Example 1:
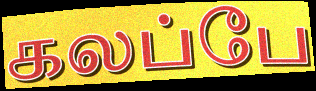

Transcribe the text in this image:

கலப்பே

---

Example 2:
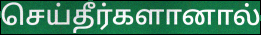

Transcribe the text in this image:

செய்தீர்களானால்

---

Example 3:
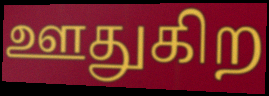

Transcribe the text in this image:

ஊதுகிற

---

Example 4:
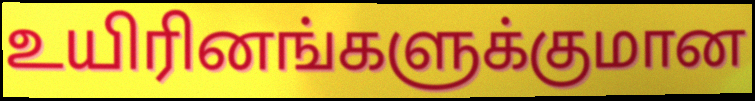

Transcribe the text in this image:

உயிரினங்களுக்குமான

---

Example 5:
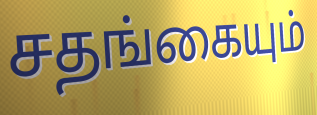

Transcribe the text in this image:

சதங்கையும்